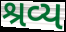
શ્રવ્ય